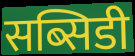
सब्सिडी